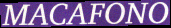
MACAFONO